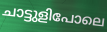
ചാട്ടുളിപോലെ